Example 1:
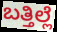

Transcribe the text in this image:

ಬತ್ತಿಲ್ಲೆ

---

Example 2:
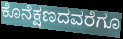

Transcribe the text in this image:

ಕೊನೆಕ್ಷಣದವರೆಗೂ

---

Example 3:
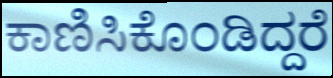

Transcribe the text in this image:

ಕಾಣಿಸಿಕೊಂಡಿದ್ದರೆ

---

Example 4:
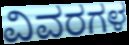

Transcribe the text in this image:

ವಿವರಗಳ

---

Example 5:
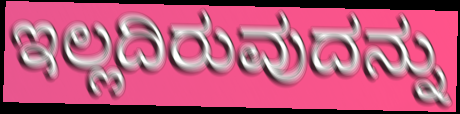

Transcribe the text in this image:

ಇಲ್ಲದಿರುವುದನ್ನು